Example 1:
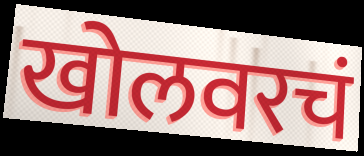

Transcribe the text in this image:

खोलवरचं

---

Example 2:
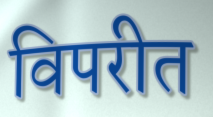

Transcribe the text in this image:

विपरीत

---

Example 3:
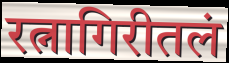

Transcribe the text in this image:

रत्नागिरीतलं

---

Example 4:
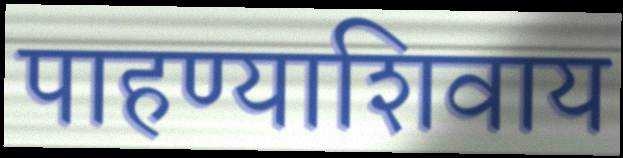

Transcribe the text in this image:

पाहण्याशिवाय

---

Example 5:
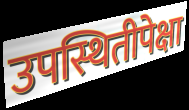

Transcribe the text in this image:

उपस्थितीपेक्षा